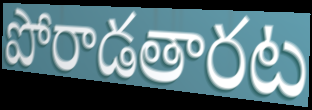
పోరాడతారట